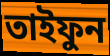
তাইফুন